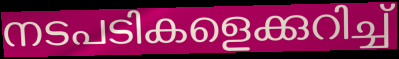
നടപടികളെക്കുറിച്ച്